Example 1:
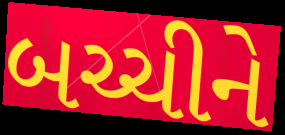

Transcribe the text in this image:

બચ્ચીને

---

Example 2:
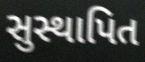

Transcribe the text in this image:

સુસ્થાપિત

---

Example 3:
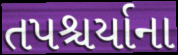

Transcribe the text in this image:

તપશ્ચર્યાના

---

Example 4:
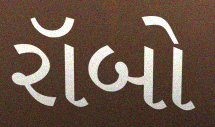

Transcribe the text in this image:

રૉબો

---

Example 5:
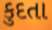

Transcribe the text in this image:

કુદતા